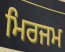
ਮਿਰਜਮ